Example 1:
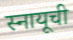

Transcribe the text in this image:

स्नायूची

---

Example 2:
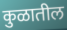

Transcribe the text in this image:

कुळातील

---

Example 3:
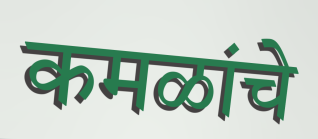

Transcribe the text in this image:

कमळांचे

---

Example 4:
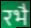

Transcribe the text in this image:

रभै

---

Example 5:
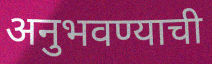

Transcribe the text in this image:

अनुभवण्याची